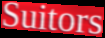
Suitors